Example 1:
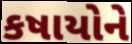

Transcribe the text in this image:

કષાયોને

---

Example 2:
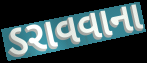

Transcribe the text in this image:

ડરાવવાના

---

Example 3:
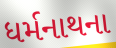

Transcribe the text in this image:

ધર્મનાથના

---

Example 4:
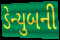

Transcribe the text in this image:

ડેન્યુબની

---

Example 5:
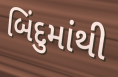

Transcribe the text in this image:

બિંદુમાંથી